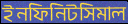
ইনফিনিটসিমাল